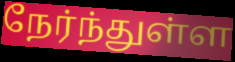
நேர்ந்துள்ள